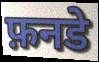
फ़नडे